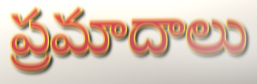
ప్రమాదాలు